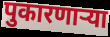
पुकारणार्‍या